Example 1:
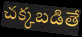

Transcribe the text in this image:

చక్కబడితే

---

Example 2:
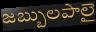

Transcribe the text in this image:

జబ్బులపాలై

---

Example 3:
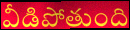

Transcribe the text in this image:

వీడిపోతుంది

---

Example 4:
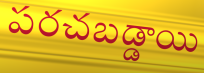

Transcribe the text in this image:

పరచబడ్డాయి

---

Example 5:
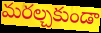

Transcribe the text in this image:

మరల్చకుండా